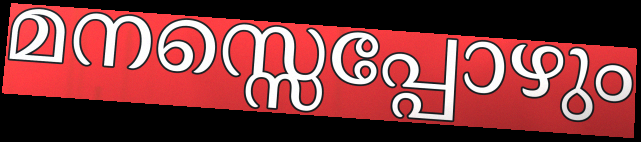
മനസ്സെപ്പോഴും